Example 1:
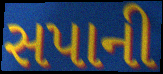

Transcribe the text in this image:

સપાની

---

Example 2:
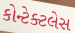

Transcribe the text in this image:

કોન્ટેક્ટલેસ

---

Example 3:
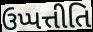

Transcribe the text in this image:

ઉપ્પત્તીતિ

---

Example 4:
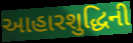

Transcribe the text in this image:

આહારશુદ્ધિની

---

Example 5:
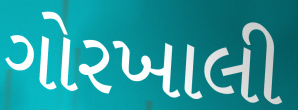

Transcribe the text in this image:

ગોરખાલી